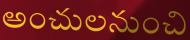
అంచులనుంచి